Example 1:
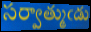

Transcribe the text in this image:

సర్వాత్ముఁడు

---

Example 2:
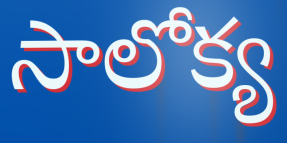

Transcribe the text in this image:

సాలోక్య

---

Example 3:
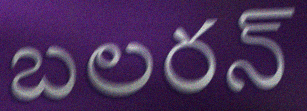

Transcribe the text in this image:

బలరన్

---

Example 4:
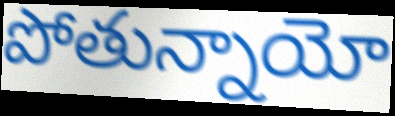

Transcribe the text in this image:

పోతున్నాయో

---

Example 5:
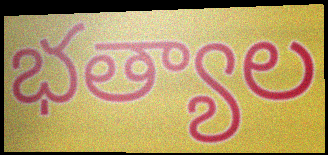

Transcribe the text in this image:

భత్యాల